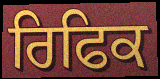
ਰਿਫਿਕ